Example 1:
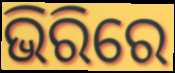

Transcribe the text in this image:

ଭିରିରେ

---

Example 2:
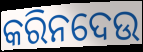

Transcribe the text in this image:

କରିନଦେଉ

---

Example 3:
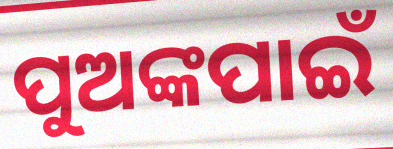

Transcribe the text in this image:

ପୁଅଙ୍କପାଇଁ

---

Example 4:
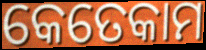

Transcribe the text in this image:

କେତେକାମ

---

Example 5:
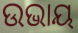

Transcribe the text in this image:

ଉଭାୟ